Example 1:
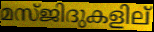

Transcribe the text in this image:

മസ്ജിദുകളില്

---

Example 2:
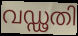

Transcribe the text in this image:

വഡ്ഢതി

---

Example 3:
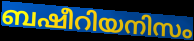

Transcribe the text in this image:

ബഷീറിയനിസം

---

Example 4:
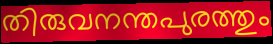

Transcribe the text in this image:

തിരുവനന്തപുരത്തും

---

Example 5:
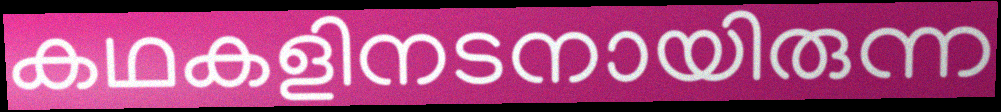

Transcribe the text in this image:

കഥകളിനടനായിരുന്ന